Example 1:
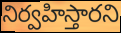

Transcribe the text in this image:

నిర్వహిస్తారని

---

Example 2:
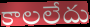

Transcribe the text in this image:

కాలలేదు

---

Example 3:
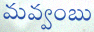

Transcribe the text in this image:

మవ్వంబు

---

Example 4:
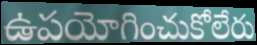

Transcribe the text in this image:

ఉపయోగించుకోలేరు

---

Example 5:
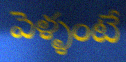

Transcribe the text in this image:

పెళ్ళంటే